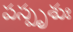
పస్పృశుః